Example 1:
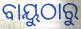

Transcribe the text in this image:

ବାୟୁଠାରୁ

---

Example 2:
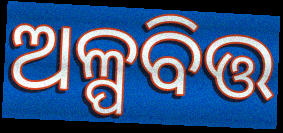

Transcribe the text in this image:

ଅଳ୍ପବିତ୍ତ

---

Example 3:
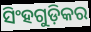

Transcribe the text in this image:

ସିଂହଗୁଡ଼ିକର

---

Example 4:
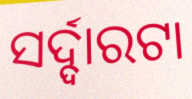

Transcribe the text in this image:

ସର୍ଦ୍ଦାରଟା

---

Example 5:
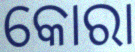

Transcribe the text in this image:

କୋରା